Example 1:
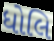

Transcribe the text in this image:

ધોલિ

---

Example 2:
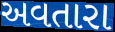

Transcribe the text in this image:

અવતારા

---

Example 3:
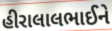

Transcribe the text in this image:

હીરાલાલભાઈને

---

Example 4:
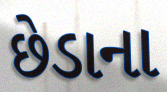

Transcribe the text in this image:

છેડાના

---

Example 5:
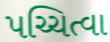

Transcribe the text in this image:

પચ્ચિત્વા